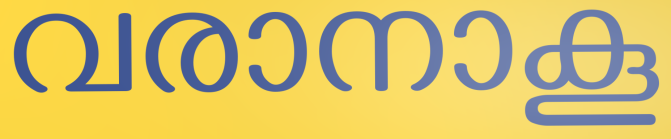
വരാനാകൂ